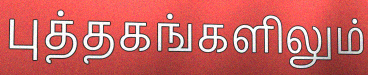
புத்தகங்களிலும்